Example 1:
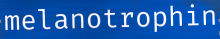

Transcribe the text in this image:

melanotrophin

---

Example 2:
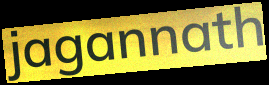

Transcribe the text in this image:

jagannath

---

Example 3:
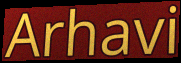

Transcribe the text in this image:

Arhavi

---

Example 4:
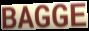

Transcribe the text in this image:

BAGGE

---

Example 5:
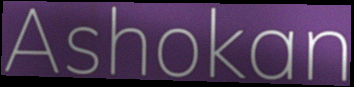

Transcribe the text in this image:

Ashokan